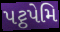
પટ્ઠપેમિ